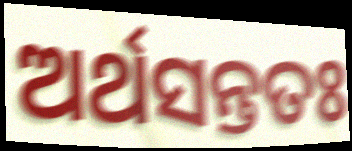
ଅର୍ଥସନ୍ତତଃ